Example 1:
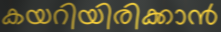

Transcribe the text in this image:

കയറിയിരിക്കാൻ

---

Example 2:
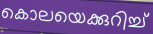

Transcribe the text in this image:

കൊലയെക്കുറിച്ച്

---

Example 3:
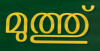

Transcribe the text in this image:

മുത്തു്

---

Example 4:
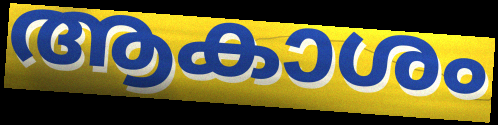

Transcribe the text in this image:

ആകാശം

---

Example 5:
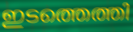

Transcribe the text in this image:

ഇടത്തെത്തി